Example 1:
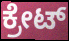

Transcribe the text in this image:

ಕ್ರೇಟ್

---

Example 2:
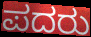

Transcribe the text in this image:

ಪದರು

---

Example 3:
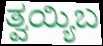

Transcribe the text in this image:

ತ್ವಯ್ಯಿಬ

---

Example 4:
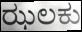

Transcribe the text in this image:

ಝಲಕು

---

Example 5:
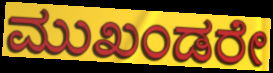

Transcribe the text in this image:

ಮುಖಂಡರೇ